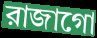
রাজাগো